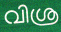
വിശ്ര